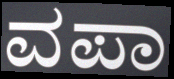
ವಪಾ